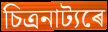
চিত্ৰনাট্যৰে